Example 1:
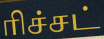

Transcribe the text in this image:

ரிச்சட்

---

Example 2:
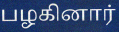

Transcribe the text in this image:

பழகினார்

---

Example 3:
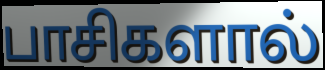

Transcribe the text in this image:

பாசிகளால்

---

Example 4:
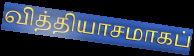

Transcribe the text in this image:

வித்தியாசமாகப்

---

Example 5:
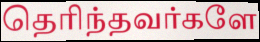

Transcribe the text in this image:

தெரிந்தவர்களே